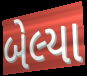
બેલ્યા